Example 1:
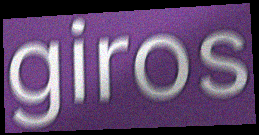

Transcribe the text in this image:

giros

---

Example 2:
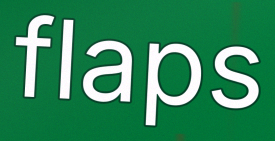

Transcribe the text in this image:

flaps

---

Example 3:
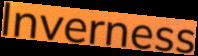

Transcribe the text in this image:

Inverness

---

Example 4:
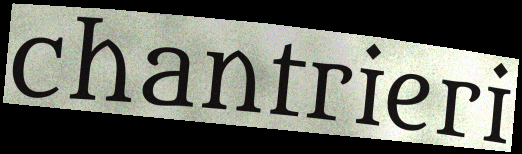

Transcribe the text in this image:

chantrieri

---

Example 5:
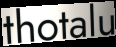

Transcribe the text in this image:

thotalu